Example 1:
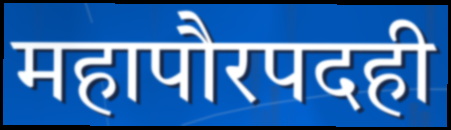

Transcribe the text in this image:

महापौरपदही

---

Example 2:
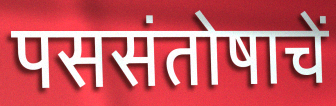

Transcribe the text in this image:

पससंतोषाचें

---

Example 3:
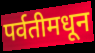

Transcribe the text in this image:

पर्वतीमधून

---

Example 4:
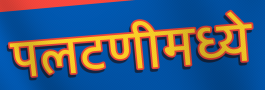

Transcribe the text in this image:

पलटणीमध्ये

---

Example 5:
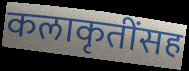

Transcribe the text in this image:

कलाकृतींसह